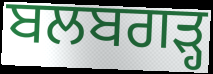
ਬਲਬਗੜ੍ਹ